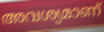
അവശ്യമാണ്